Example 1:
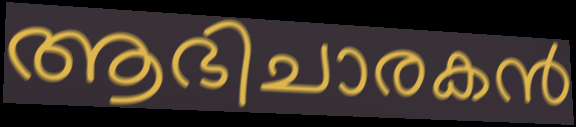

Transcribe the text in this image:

ആഭിചാരകൻ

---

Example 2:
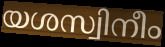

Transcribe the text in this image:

യശസ്വിനീം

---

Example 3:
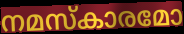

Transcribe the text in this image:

നമസ്കാരമോ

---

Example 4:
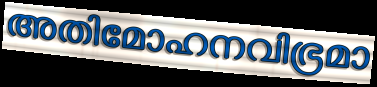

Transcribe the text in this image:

അതിമോഹനവിഭ്രമാ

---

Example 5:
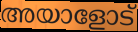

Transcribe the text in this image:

അയാളോട്